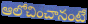
ఆలోచించానంటే